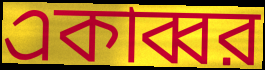
একাব্বর